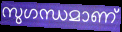
സുഗന്ധമാണ്